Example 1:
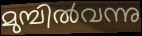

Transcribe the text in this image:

മുമ്പിൽവന്നു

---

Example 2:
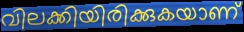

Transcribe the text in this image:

വിലക്കിയിരിക്കുകയാണ്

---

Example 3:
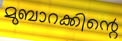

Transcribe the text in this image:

മുബാറക്കിന്റെ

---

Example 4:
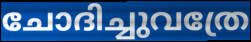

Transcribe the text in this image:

ചോദിച്ചുവത്രേ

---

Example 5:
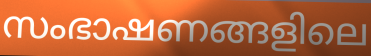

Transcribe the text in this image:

സംഭാഷണങ്ങളിലെ